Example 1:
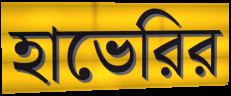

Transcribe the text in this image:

হাভেরির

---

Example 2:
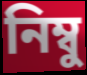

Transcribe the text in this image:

নিম্বু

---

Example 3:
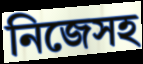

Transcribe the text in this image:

নিজেসহ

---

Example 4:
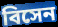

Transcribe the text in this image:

বিসেন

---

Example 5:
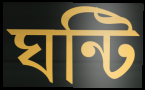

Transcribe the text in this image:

ঘন্টি